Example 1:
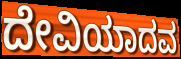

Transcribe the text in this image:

ದೇವಿಯಾದವ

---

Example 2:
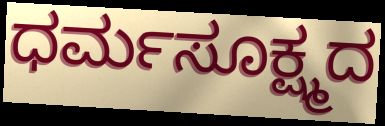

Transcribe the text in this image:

ಧರ್ಮಸೂಕ್ಷ್ಮದ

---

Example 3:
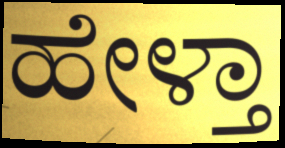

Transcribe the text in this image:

ಹೇಳ್ತಾ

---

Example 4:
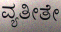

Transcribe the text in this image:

ವ್ಯತೀತೇ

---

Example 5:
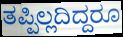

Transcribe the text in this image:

ತಪ್ಪಿಲ್ಲದಿದ್ದರೂ